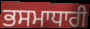
ਭਸਮਾਧਾਰੀ